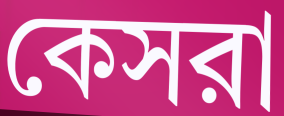
কেসরা